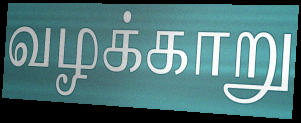
வழக்காறு